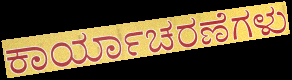
ಕಾರ್ಯಾಚರಣೆಗಳು